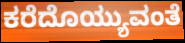
ಕರೆದೊಯ್ಯುವಂತೆ